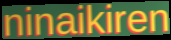
ninaikiren